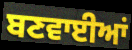
ਬਣਵਾਈਆਂ